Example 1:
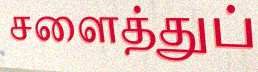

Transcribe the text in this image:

சளைத்துப்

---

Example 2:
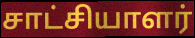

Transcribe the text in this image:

சாட்சியாளர்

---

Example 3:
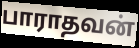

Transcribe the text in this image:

பாராதவன்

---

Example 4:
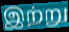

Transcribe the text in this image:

இற்று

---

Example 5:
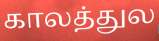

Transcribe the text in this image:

காலத்துல